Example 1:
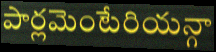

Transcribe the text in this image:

పార్లమెంటేరియన్గా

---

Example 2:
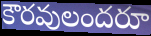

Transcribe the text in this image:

కౌరవులందరూ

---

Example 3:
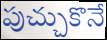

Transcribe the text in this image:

పుచ్చుకొనే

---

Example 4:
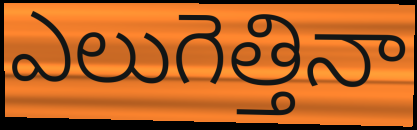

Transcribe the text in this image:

ఎలుగెత్తినా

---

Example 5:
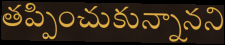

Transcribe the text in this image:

తప్పించుకున్నానని